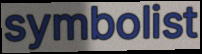
symbolist